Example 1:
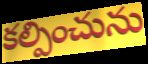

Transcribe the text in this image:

కల్పించును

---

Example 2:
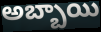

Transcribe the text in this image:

అబ్బాయి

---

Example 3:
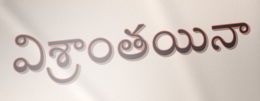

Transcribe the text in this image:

విశ్రాంతయినా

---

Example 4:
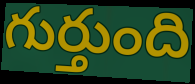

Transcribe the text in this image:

గుర్తుంది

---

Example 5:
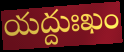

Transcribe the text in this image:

యద్దుఃఖం